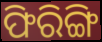
ଫିରିଙ୍ଗି